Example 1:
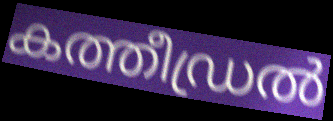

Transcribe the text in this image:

കത്തീഡ്രൽ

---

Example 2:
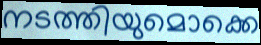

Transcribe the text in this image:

നടത്തിയുമൊക്കെ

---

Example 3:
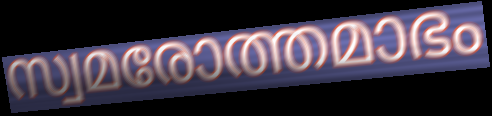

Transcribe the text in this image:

സ്വമരോത്തമാഭം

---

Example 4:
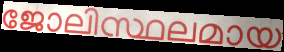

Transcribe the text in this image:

ജോലിസ്ഥലമായ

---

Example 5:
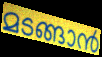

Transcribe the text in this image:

മടങ്ങാൻ